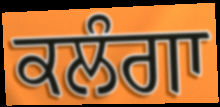
ਕਲੰਗਾ